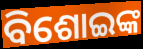
ବିଶୋଇଙ୍କ